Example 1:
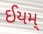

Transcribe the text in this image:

ઈયમ્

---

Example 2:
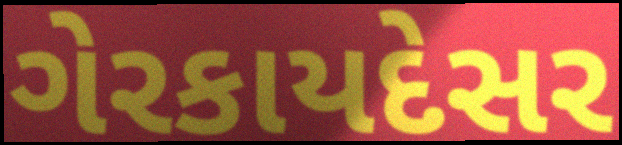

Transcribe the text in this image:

ગેરકાયદેસર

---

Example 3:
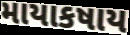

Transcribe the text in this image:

માયાકષાય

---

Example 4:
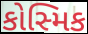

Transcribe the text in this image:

કોસ્મિક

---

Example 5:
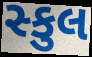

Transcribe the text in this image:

સ્કુલ